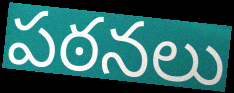
పఠనలు